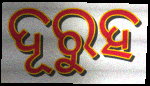
ଦୂରୁହ